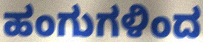
ಹಂಗುಗಳಿಂದ